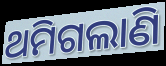
ଥମିଗଲାଣି